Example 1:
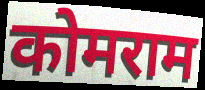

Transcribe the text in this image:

कोमराम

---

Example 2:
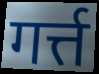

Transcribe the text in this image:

गर्त्त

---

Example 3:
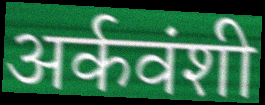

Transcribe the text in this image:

अर्कवंशी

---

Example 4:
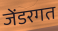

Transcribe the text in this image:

जेंडरगत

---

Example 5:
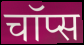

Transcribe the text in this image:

चॉप्स